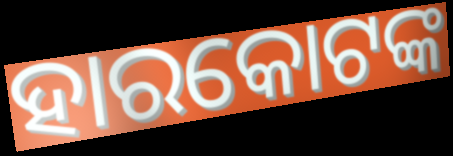
ହାରକୋଟଙ୍କ